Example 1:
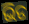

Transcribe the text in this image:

ଭିଡ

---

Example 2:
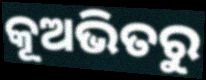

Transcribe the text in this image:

କୂଅଭିତରୁ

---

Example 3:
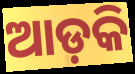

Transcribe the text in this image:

ଆଡ଼କି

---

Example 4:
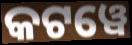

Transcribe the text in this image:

କଟୱେ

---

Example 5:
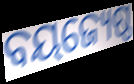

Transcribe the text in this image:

ବୟଜ୍ୟେଷ୍ଠ